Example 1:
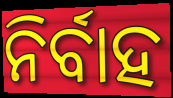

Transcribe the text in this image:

ନିର୍ବାହ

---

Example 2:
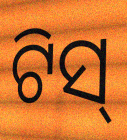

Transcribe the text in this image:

ଟିସ୍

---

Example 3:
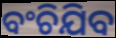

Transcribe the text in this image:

ବଂଚିଯିବ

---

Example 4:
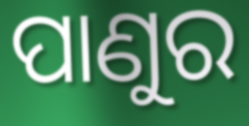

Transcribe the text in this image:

ପାଣୁର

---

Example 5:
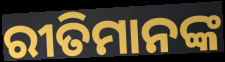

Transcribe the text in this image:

ରୀତିମାନଙ୍କ